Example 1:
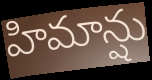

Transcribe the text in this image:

హిమాన్షు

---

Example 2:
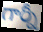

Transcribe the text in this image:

గార్నీ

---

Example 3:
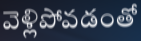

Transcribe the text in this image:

వెళ్లిపోవడంతో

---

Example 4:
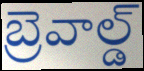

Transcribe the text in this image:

బ్రెవాల్డ్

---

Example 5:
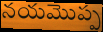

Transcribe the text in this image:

నయమొప్ప